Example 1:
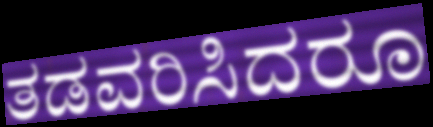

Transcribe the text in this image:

ತಡವರಿಸಿದರೂ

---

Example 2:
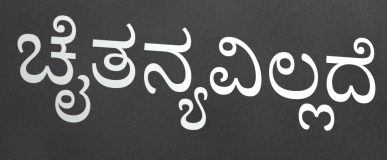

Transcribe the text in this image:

ಚೈತನ್ಯವಿಲ್ಲದೆ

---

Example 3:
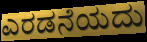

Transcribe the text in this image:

ಎರಡನೆಯದು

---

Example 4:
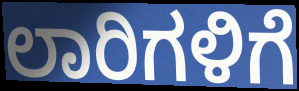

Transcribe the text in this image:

ಲಾರಿಗಳಿಗೆ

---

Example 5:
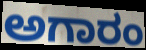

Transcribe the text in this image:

ಅಗಾರಂ